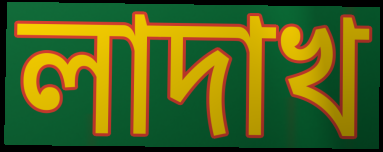
লাদাখ